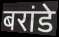
बरांडे